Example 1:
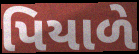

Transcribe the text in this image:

પિયાળે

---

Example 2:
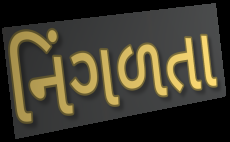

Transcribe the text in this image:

નિંગળતા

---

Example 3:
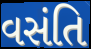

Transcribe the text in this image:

વસંતિ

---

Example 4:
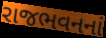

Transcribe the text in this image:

રાજભવનનાં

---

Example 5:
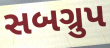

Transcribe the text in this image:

સબગ્રુપ